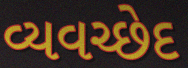
વ્યવચ્છેદ